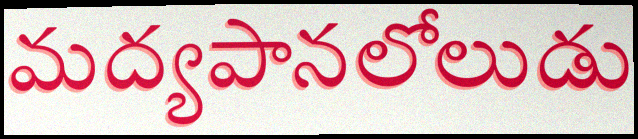
మద్యపానలోలుడు